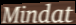
Mindat